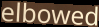
elbowed